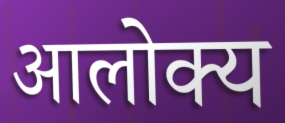
आलोक्य